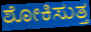
ಶೋಕಿಸುತ್ತ